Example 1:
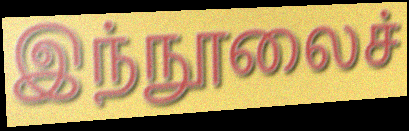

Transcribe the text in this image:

இந்நூலைச்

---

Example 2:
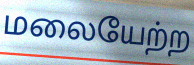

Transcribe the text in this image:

மலையேற்ற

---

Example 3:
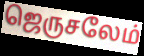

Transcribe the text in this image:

ஜெருசலேம்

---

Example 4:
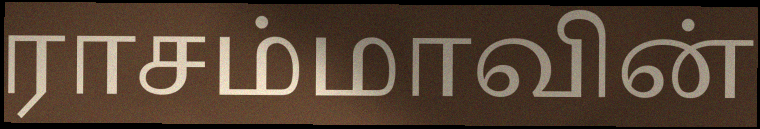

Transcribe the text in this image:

ராசம்மாவின்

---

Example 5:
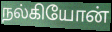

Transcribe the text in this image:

நல்கியோன்